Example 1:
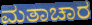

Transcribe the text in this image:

ಮತಾಚಾರ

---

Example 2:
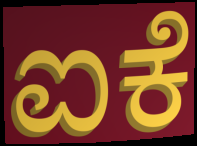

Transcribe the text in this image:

ಐಕೆ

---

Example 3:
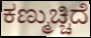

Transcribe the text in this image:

ಕಣ್ಮುಚ್ಚಿದೆ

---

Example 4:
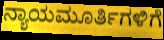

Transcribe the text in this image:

ನ್ಯಾಯಮೂರ್ತಿಗಳಿಗೆ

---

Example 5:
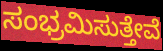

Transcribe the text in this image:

ಸಂಭ್ರಮಿಸುತ್ತೇವೆ